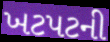
ખટપટની